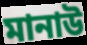
মানাউ